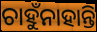
ଚାହୁଁନାହାନ୍ତି